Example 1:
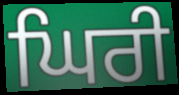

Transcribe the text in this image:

ਘਿਰੀ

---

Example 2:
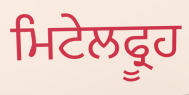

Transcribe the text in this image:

ਮਿਟੇਲਫ੍ਰੂਹ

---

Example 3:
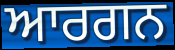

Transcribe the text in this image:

ਆਰਗਨ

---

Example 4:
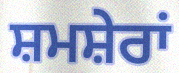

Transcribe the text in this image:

ਸ਼ਮਸ਼ੇਰਾਂ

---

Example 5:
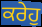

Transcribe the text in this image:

ਕਰੇਹੁ